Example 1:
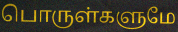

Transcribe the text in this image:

பொருள்களுமே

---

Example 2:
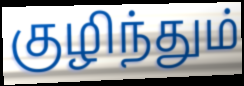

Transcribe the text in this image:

குழிந்தும்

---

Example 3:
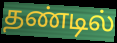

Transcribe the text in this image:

தண்டில்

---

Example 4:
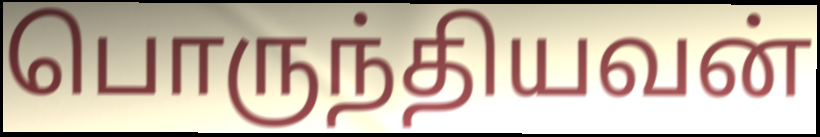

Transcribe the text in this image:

பொருந்தியவன்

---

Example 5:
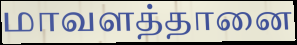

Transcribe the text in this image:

மாவளத்தானை